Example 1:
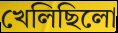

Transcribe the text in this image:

খেলিছিলো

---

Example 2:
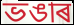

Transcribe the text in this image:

ভঙাৰ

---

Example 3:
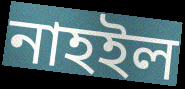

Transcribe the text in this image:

নাহইল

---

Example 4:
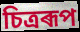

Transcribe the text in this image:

চিত্ৰৰূপ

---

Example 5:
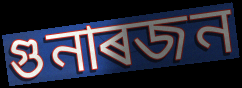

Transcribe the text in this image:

গুনাৰজন